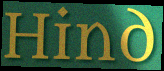
Hind